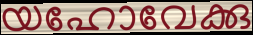
യഹോവേക്കു